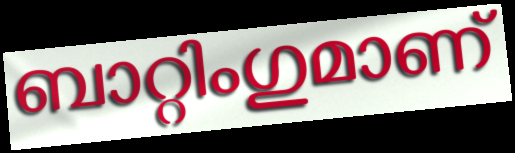
ബാറ്റിംഗുമാണ്